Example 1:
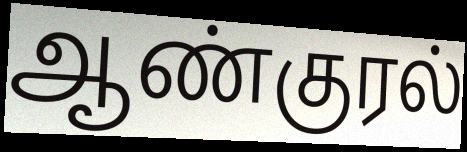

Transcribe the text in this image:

ஆண்குரல்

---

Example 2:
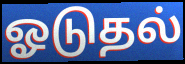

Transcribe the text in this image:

ஓடுதல்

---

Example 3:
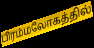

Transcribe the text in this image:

பிரம்மலோகத்தில்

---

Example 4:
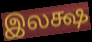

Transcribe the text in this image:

இலக்ஷ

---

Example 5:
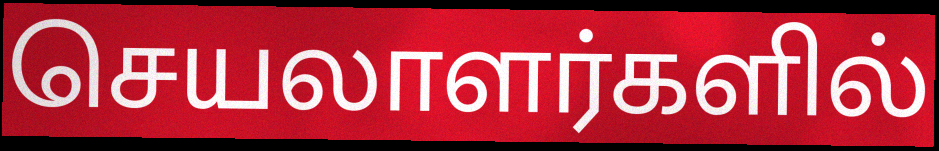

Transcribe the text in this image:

செயலாளர்களில்